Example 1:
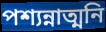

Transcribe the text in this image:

পশ্যন্নাত্মনি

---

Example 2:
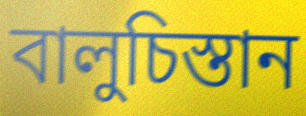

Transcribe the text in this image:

বালুচিস্তান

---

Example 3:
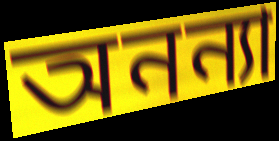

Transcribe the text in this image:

অনন্যা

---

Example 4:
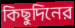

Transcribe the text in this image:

কিছুদিনের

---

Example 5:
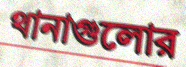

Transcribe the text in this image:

থানাগুলোর